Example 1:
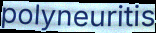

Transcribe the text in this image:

polyneuritis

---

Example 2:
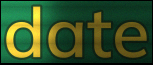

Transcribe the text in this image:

date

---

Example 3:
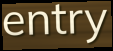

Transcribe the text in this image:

entry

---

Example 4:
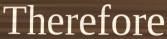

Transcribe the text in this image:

Therefore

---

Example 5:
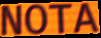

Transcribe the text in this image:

NOTA